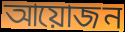
আয়োজন